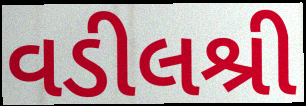
વડીલશ્રી